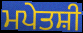
ਮਪੇਤਸ਼ੀ